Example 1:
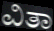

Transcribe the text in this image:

ವಿತಾ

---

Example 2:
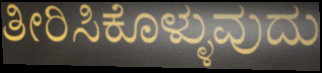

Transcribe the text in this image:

ತೀರಿಸಿಕೊಳ್ಳುವುದು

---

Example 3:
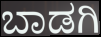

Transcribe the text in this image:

ಬಾಡಗಿ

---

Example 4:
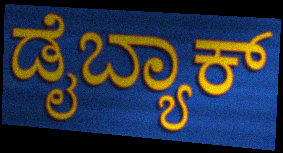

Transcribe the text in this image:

ಡೈಬ್ಯಾಕ್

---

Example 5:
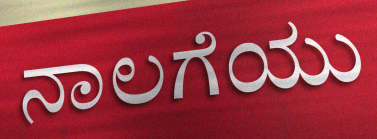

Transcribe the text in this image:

ನಾಲಗೆಯು